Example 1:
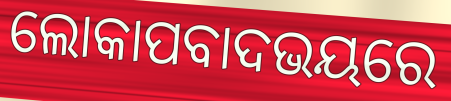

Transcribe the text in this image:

ଲୋକାପବାଦଭୟରେ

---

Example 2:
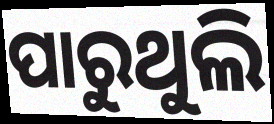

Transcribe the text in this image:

ପାରୁଥୁଲି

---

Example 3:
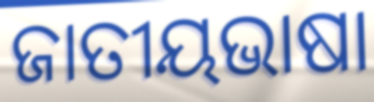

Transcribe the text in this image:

ଜାତୀୟଭାଷା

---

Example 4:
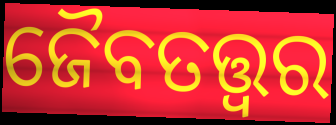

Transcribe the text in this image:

ଜୈବତତ୍ତ୍ୱର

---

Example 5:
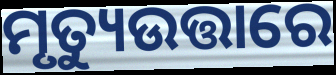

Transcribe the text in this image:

ମୃତ୍ୟୁଉତ୍ତାରେ